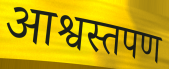
आश्वस्तपण